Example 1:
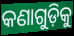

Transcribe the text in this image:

କଣାଗୁଡ଼ିକୁ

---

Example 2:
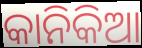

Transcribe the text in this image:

କାନିକିଆ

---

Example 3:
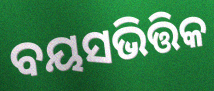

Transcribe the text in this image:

ବୟସଭିତ୍ତିକ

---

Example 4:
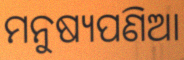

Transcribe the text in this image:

ମନୁଷ୍ୟପଣିଆ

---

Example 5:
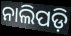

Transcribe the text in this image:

ନାଲିପଡ଼ି